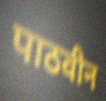
पाठवीन